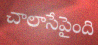
చాలాసేపైంది